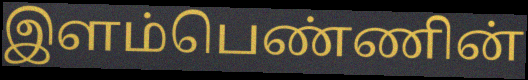
இளம்பெண்ணின்